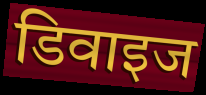
डिवाइज